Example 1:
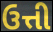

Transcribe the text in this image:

ઉત્તી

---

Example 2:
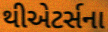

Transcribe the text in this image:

થીએટર્સના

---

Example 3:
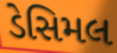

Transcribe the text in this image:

ડેસિમલ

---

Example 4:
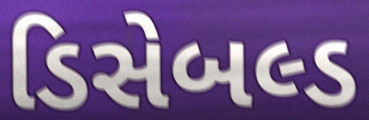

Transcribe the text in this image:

ડિસેબલ્ડ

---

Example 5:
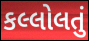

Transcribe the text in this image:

કલ્લોલતું